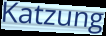
Katzung